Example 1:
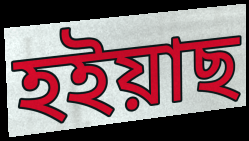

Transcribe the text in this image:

হইয়াছ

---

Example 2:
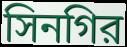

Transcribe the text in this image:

সিনগির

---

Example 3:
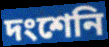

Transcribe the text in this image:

দংশেনি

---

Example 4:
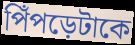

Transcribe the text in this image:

পিঁপড়েটাকে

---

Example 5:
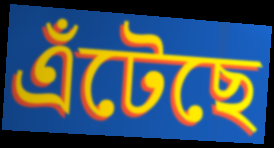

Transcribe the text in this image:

এঁটেছে